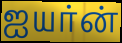
ஐயர்ன்